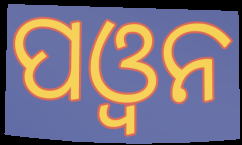
ପଓ୍ବନ